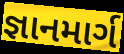
જ્ઞાનમાર્ગ